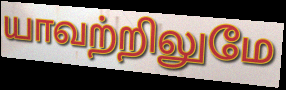
யாவற்றிலுமே